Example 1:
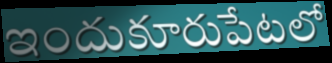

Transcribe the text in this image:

ఇందుకూరుపేటలో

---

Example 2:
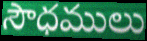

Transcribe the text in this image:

సౌధములు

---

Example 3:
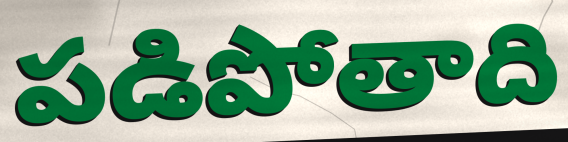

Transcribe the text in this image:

పడిపోతాది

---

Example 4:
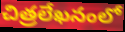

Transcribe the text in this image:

చిత్రలేఖనంలో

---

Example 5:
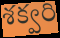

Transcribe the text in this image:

శక్వరి